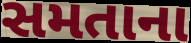
સમતાના